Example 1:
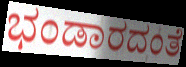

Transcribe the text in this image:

ಭಂಡಾರದಂತೆ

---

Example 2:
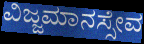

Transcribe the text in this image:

ವಿಜ್ಜಮಾನಸ್ಸೇವ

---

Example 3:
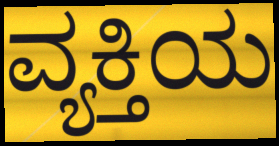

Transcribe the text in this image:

ವ್ಯಕ್ತಿಯ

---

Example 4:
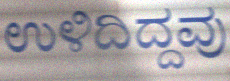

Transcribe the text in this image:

ಉಳಿದಿದ್ದವು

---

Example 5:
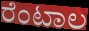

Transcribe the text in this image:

ರೆಂಟಾಲ